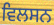
ਵਿਲਸਨ